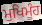
ਮੁਖਿਮੂੰਹ